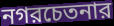
নগরচেতনার